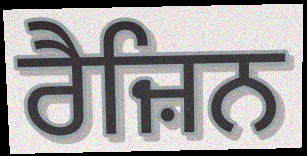
ਰੈਜ਼ਿਨ